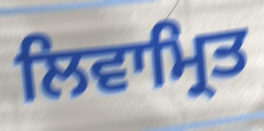
ਲਿਵਾਮ੍ਰਿਤ